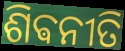
ଶିଵନୀତି